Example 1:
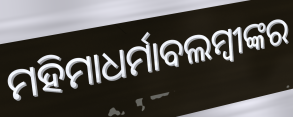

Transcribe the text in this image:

ମହିମାଧର୍ମାବଲମ୍ବୀଙ୍କର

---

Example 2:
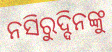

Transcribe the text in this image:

ନସିରୁଦ୍ଦିନଙ୍କୁ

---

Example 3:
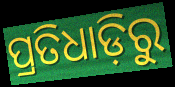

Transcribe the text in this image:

ପ୍ରତିଧାଡ଼ିରୁ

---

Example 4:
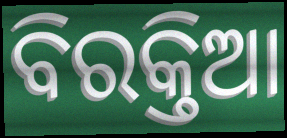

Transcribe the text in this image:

ବିରକ୍ତିଆ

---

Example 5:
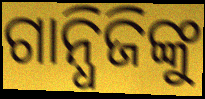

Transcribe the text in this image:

ଗାନ୍ଧିଜିଙ୍କୁ